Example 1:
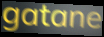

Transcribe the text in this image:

gatane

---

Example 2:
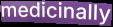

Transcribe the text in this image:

medicinally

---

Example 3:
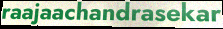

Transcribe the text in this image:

raajaachandrasekar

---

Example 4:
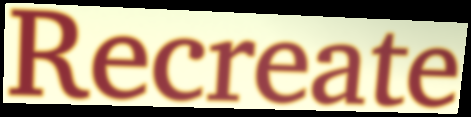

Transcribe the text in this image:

Recreate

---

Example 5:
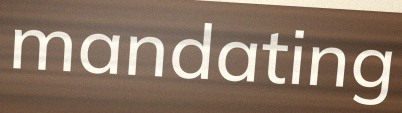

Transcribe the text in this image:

mandating